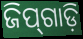
ଜିପ୍‌ଗାଡ଼ି